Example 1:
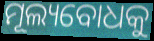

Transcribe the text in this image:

ମୂଲ୍ୟବୋଧକୁ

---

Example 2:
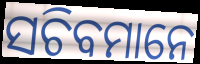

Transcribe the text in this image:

ସଚିବମାନେ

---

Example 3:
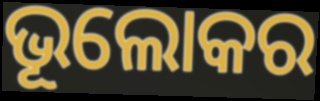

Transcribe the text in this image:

ଭୂଲୋକର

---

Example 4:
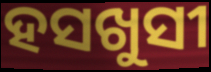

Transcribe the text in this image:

ହସଖୁସୀ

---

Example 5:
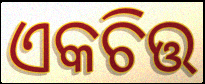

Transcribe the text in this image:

ଏକଚିତ୍ତ